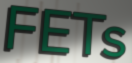
FETs